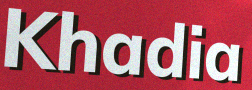
Khadia